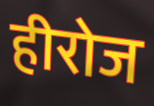
हीरोज